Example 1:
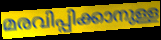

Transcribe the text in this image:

മരവിപ്പിക്കാനുള്ള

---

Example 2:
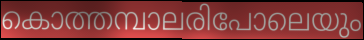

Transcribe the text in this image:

കൊത്തമ്പാലരിപോലെയും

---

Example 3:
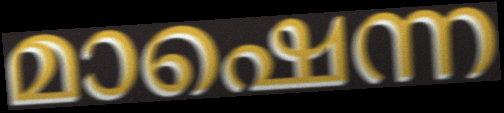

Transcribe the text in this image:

മാഷെന്ന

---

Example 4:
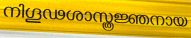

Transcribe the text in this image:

നിഗൂഢശാസ്ത്രജ്ഞനായ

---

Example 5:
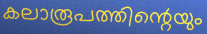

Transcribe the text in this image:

കലാരൂപത്തിന്റെയും